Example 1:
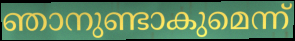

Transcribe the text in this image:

ഞാനുണ്ടാകുമെന്ന്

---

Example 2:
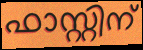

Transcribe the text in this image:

ഫാസ്റ്റിന്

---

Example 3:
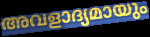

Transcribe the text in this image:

അവളാദ്യമായും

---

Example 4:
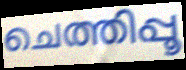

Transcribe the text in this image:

ചെത്തിപ്പൂ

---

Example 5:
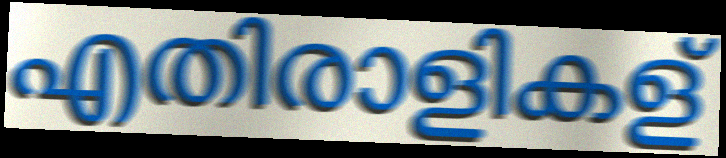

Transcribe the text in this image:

എതിരാളികള്